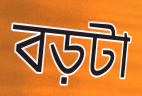
বড়টা